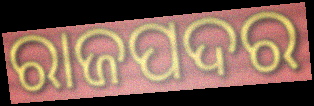
ରାଜପଦର